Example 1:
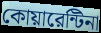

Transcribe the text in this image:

কোয়ারেন্টিনা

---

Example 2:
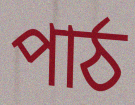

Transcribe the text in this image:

পাঠ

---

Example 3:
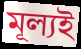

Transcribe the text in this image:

মূল্যই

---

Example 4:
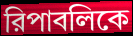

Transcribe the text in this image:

রিপাবলিকে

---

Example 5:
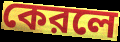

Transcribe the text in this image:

কেরলে